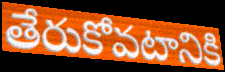
తేరుకోవటానికి